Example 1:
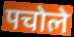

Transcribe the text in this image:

पचोले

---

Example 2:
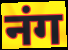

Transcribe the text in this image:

नंग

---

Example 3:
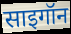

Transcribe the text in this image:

साइगॉन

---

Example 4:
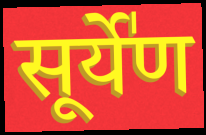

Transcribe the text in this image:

सूर्ये॑ण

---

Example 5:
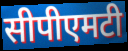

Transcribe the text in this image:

सीपीएमटी